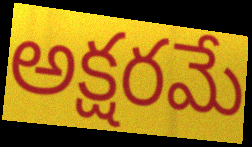
అక్షరమే